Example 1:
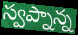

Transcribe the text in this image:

స్వప్నాన్న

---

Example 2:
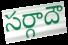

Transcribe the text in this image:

సర్గాదౌ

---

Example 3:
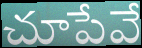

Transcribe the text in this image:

చూపేవే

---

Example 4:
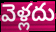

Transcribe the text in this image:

వెళ్లదు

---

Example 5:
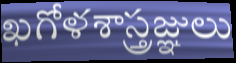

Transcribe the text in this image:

ఖగోళశాస్త్రజ్ఞులు